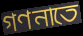
গণনাতে